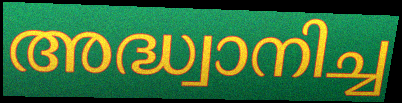
അദ്ധ്വാനിച്ച